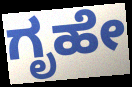
ಗೃಹೇ